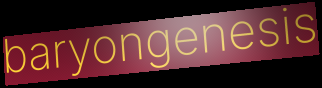
baryongenesis